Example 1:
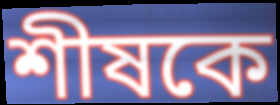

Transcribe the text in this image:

শীষকে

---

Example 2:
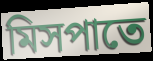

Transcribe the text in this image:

মিসপাতে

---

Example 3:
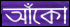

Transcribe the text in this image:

আঁকো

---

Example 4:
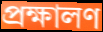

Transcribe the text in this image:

প্রক্ষালণ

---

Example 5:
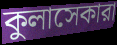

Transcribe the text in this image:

কুলাসেকারা